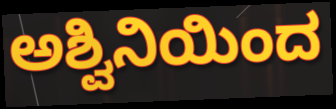
ಅಶ್ವಿನಿಯಿಂದ